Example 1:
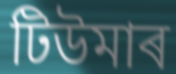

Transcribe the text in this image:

টিউমাৰ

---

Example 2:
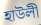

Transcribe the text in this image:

হাউলী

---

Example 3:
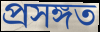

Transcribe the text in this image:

প্ৰসঙ্গত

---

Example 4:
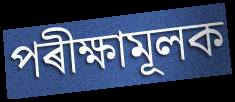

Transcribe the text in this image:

পৰীক্ষামূলক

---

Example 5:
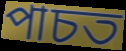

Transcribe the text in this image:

পাচত